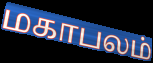
மகாபலம்